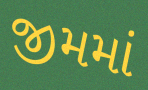
જીમમાં